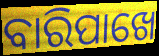
ବାରିପାଖେ